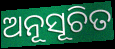
ଅନୂସୂଚିତ